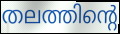
തലത്തിന്റെ